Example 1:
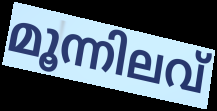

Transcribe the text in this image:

മൂന്നിലവ്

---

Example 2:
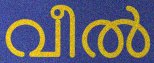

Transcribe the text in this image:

വീൽ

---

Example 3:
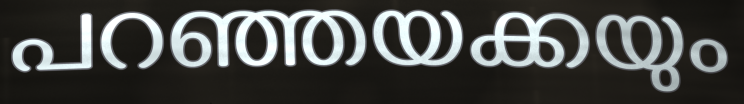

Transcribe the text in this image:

പറഞ്ഞയക്കയും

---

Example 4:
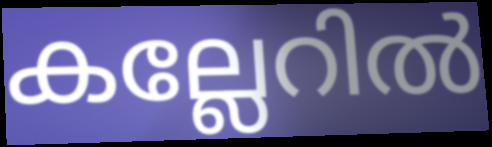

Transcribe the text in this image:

കല്ലേറിൽ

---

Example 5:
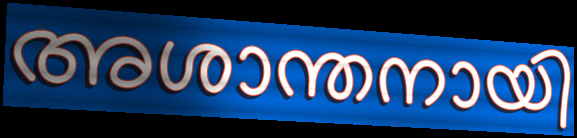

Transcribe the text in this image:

അശാന്തനായി